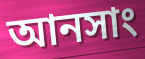
আনসাং